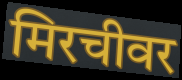
मिरचीवर